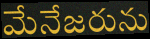
మేనేజరును